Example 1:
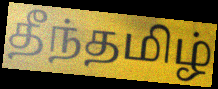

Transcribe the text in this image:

தீந்தமிழ்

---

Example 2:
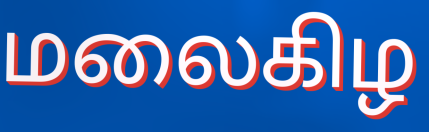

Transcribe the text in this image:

மலைகிழ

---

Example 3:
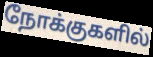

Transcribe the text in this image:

நோக்குகளில்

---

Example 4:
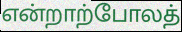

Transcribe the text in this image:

என்றாற்போலத்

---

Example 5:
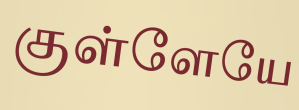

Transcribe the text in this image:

குள்ளேயே